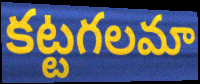
కట్టగలమా